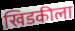
खिडकीला